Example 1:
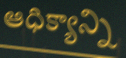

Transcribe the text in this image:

ఆధిక్యాన్ని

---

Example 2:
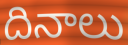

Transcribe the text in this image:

దినాలు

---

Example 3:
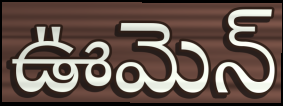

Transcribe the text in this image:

ఊమెన్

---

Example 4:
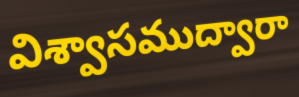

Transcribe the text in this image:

విశ్వాసముద్వారా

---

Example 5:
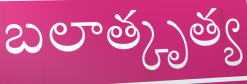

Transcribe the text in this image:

బలాత్కృత్య